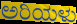
ಅರಿಯಳು